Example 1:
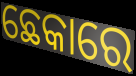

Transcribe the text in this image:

ଛେକାରେ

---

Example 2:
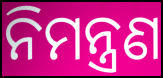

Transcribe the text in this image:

ନିମନ୍ତ୍ରଣ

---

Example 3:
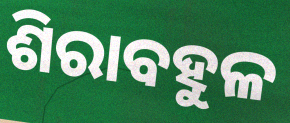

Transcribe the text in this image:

ଶିରାବହୁଳ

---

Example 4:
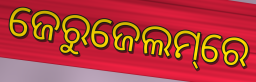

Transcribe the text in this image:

ଜେରୁଜେଲମ୍‌ରେ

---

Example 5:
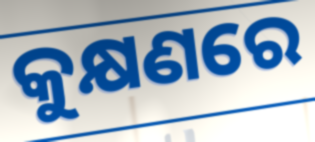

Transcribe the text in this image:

କୁକ୍ଷଣରେ